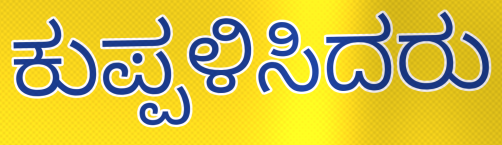
ಕುಪ್ಪಳಿಸಿದರು